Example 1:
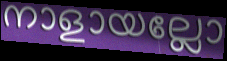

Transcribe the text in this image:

നാളായല്ലോ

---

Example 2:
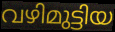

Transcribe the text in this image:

വഴിമുട്ടിയ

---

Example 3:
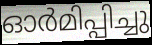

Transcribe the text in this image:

ഓർമിപ്പിച്ചു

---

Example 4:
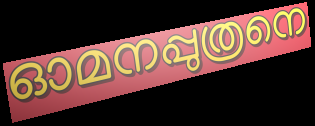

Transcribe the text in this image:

ഓമനപ്പുത്രനെ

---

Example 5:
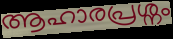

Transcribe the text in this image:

ആഹാരപ്രശ്നം